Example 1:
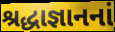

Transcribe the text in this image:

શ્રદ્ધાજ્ઞાનનાં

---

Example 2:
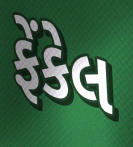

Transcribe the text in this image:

ફેંકેલ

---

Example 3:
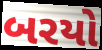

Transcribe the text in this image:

બરયો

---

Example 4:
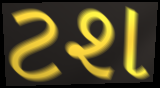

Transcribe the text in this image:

ટશ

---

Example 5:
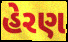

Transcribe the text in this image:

હેરણ